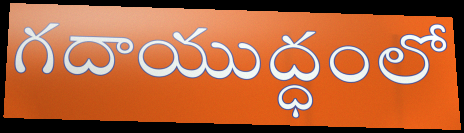
గదాయుద్ధంలో